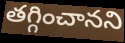
తగ్గించానని